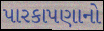
પારકાપણાનો